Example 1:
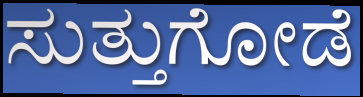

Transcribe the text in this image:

ಸುತ್ತುಗೋಡೆ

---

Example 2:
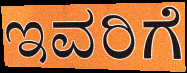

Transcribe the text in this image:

ಇವರಿಗೆ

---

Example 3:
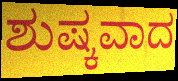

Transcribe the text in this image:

ಶುಷ್ಕವಾದ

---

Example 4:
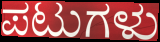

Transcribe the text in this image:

ಪಟುಗಳು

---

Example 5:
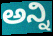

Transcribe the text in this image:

ಅನ್ನಿ